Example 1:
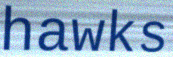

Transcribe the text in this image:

hawks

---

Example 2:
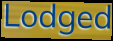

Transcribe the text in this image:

Lodged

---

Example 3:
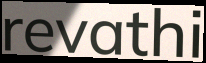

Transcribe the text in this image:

revathi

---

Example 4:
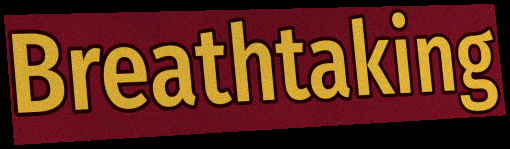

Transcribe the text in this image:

Breathtaking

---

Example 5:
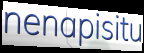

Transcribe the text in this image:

nenapisitu